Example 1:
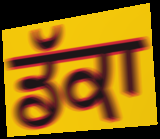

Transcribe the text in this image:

ਡੱਕਾ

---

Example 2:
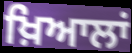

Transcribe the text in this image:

ਖ਼ਿਆਲਾਂ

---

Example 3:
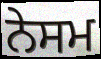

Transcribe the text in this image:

ਨੇਸਮ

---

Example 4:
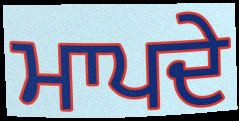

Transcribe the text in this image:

ਮਾਪਦੇ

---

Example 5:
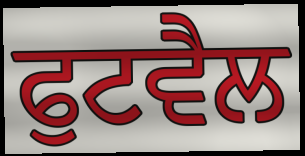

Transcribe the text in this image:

ਫੁਟਵੈਲ